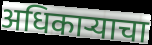
अधिकार्‍याचा